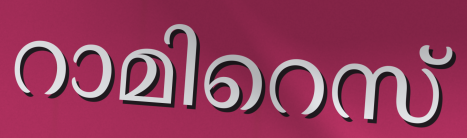
റാമിറെസ്